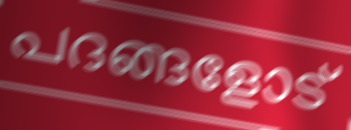
പദങ്ങളോട്